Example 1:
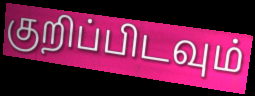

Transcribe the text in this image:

குறிப்பிடவும்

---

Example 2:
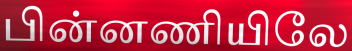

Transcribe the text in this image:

பின்னணியிலே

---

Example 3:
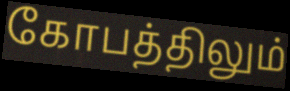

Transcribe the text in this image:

கோபத்திலும்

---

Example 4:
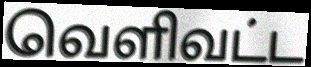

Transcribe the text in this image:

வெளிவட்ட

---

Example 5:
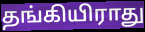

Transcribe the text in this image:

தங்கியிராது